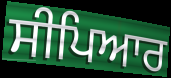
ਸੀਪਿਆਰ